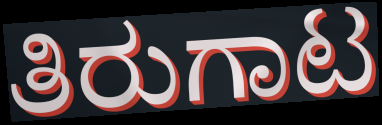
ತಿರುಗಾಟ